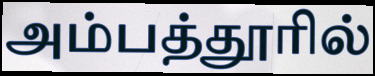
அம்பத்தூரில்